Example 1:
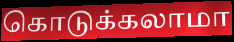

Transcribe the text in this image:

கொடுக்கலாமா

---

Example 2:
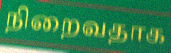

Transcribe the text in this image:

நிறைவதாக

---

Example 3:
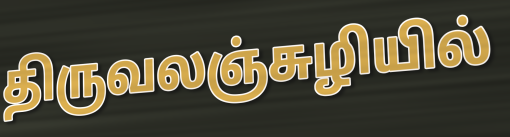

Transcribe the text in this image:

திருவலஞ்சுழியில்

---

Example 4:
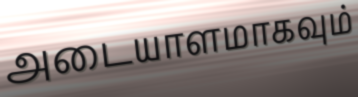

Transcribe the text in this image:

அடையாளமாகவும்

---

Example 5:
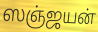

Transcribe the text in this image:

ஸஞ்ஜயன்